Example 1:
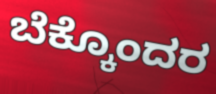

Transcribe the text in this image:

ಬೆಕ್ಕೊಂದರ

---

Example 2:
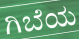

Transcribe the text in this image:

ಗಿಬೆಯ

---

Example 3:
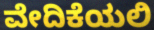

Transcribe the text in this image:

ವೇದಿಕೆಯಲಿ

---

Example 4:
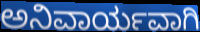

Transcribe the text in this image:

ಅನಿವಾರ್ಯವಾಗಿ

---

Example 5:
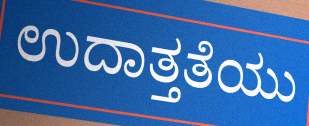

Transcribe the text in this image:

ಉದಾತ್ತತೆಯು